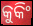
କୁକିଂ